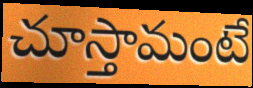
చూస్తామంటే